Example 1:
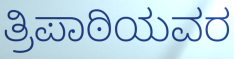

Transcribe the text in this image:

ತ್ರಿಪಾಠಿಯವರ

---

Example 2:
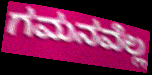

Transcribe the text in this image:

ಗಮನವೆಲ್ಲ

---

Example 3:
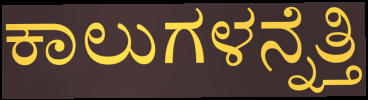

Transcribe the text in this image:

ಕಾಲುಗಳನ್ನೆತ್ತಿ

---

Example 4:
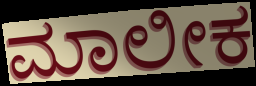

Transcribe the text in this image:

ಮಾಲೀಕ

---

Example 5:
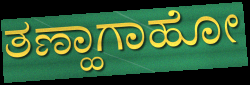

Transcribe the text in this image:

ತಣ್ಹಾಗಾಹೋ